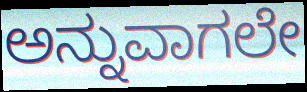
ಅನ್ನುವಾಗಲೇ